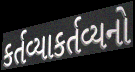
કર્તવ્યાકર્તવ્યનો